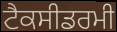
ਟੈਕਸੀਡਰਮੀ